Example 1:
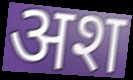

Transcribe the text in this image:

अश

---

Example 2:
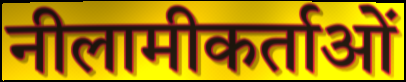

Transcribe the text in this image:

नीलामीकर्ताओं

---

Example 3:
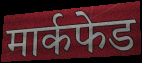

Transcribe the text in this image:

मार्कफेड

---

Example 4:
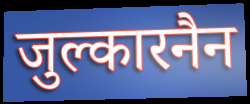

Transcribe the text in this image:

जुल्कारनैन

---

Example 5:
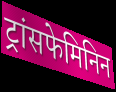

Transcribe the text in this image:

ट्रांसफेमिनिन